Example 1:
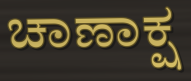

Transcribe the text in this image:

ಚಾಣಾಕ್ಷ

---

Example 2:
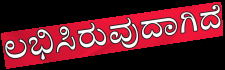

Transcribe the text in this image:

ಲಭಿಸಿರುವುದಾಗಿದೆ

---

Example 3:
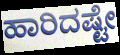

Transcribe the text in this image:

ಹಾರಿದಷ್ಟೇ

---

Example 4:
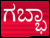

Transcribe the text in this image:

ಗಬ್ಭಾ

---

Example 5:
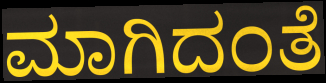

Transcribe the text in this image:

ಮಾಗಿದಂತೆ